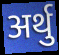
अर्थु